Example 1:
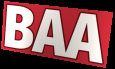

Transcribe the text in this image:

BAA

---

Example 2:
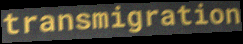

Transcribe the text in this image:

transmigration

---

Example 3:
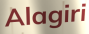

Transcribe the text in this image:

Alagiri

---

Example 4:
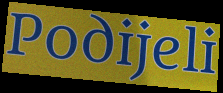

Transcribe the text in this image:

Podijeli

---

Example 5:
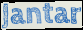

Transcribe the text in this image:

Jantar